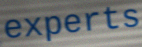
experts